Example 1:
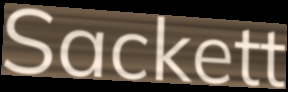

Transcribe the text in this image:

Sackett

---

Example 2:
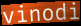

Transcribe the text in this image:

vinodi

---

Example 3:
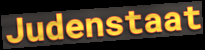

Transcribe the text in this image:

Judenstaat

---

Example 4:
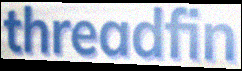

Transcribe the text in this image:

threadfin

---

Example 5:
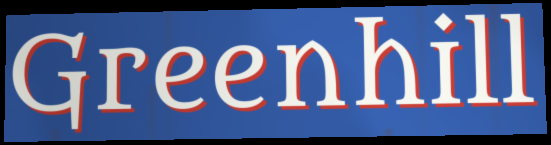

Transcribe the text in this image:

Greenhill